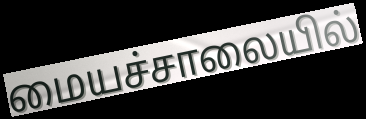
மையச்சாலையில்